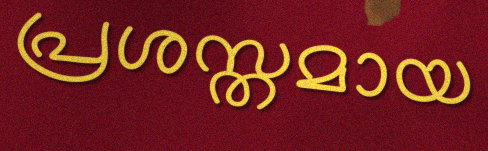
പ്രശസ്തമായ